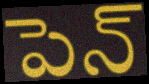
పెన్